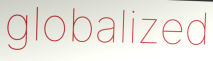
globalized